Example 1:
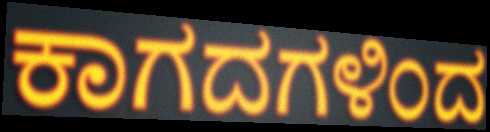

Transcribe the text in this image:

ಕಾಗದಗಳಿಂದ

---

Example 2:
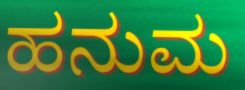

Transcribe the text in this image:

ಹನುಮ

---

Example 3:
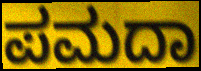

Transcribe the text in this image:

ಪಮದಾ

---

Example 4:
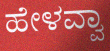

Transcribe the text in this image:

ಹೇಳವ್ವಾ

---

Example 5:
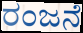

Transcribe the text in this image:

ರಂಜನೆ